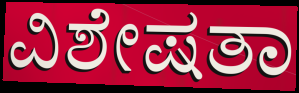
ವಿಶೇಷತಾ